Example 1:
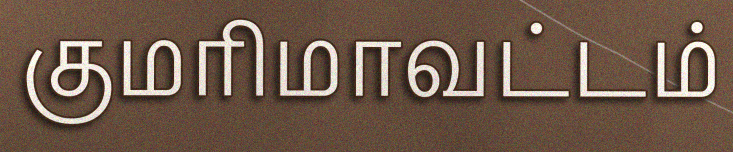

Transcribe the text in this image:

குமரிமாவட்டம்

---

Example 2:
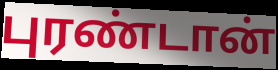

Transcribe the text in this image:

புரண்டான்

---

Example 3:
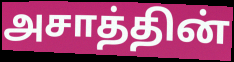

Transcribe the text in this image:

அசாத்தின்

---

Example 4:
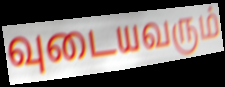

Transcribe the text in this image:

வுடையவரும்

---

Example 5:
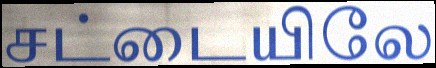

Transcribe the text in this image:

சட்டையிலே